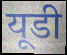
यूडी